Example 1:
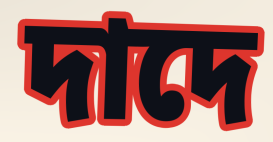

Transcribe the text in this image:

দাদে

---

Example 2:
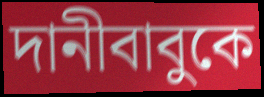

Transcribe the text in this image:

দানীবাবুকে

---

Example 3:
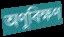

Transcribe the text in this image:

অণুবিক্ষণ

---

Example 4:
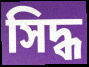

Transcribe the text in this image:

সিদ্ধ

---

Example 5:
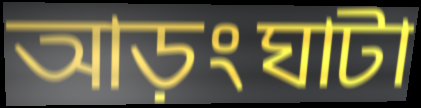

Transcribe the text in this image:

আড়ংঘাটা